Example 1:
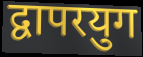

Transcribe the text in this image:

द्वापरयुग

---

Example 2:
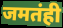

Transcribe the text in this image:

जमतंही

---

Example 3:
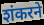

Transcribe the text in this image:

शंकरने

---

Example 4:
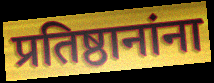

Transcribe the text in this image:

प्रतिष्ठानांना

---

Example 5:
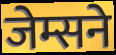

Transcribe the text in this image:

जेम्सने